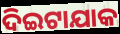
ଦିଇଟାଯାକ